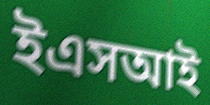
ইএসআই